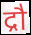
द्रौ